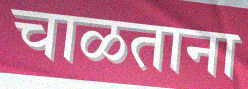
चाळताना